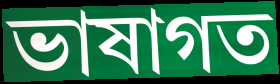
ভাষাগত